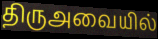
திருஅவையில்